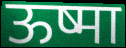
ऊष्मा